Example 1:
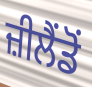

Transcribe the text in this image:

ਜ਼ੀਲੈਂਡੋਂ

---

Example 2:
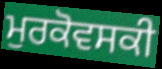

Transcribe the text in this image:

ਮੁਰਕੋਵਸਕੀ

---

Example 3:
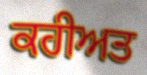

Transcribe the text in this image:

ਕਹੀਅਤ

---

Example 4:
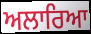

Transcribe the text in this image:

ਅਲਾਰਿਆ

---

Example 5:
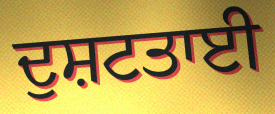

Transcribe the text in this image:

ਦੁਸ਼ਟਤਾਈ